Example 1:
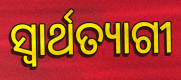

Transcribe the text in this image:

ସ୍ୱାର୍ଥତ୍ୟାଗୀ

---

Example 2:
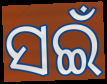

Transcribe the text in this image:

ସଇଁ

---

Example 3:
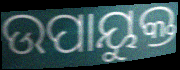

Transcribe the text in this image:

ଉପାୟୁକ୍ତ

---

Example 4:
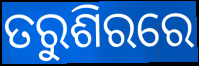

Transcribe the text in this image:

ତରୁଶିରରେ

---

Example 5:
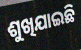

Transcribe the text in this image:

ଶୁଖିଯାଇଛି